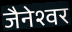
जैनेश्वर